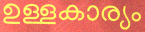
ഉള്ളകാര്യം